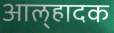
आल्हादक